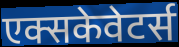
एक्सकेवेटर्स